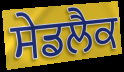
ਸੇਡਲੈਕ